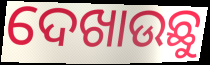
ଦେଖାଉଛୁ